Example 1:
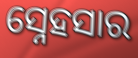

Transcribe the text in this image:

ସ୍ନେହସାର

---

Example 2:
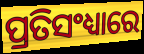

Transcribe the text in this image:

ପ୍ରତିସଂଧ୍ୟାରେ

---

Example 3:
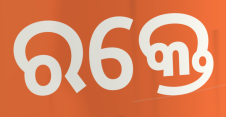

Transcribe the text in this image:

ରକ୍ତେ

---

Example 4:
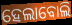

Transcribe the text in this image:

ହେଲାବୋଲି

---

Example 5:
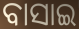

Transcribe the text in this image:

ବାସାଇ